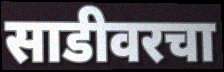
साडीवरचा